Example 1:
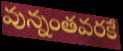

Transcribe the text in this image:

వున్నంతవరకే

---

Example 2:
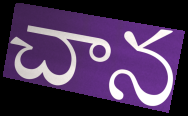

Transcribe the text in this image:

చాన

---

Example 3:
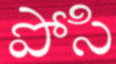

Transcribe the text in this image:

పోసి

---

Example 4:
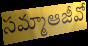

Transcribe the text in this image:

సమ్మాఆజీవో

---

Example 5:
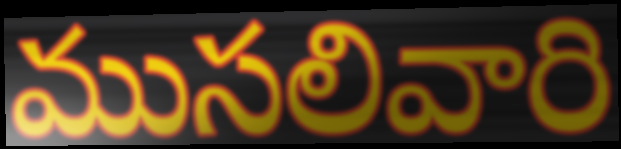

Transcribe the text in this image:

ముసలివారి